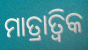
ମାତ୍ରାତ୍ଵିକ